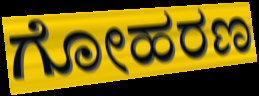
ಗೋಹರಣ